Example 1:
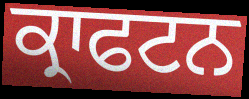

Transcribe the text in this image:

ਕ੍ਰਾਫਟਨ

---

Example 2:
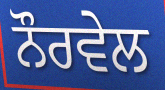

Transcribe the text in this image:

ਨੌਰਵੇਲ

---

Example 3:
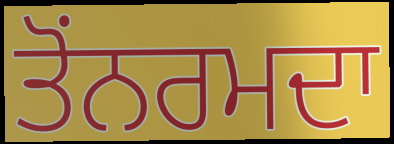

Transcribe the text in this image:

ਤੋਂਨਰਮਦਾ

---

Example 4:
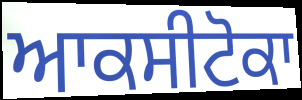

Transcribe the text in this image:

ਆਕਸੀਟੋਕਾ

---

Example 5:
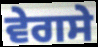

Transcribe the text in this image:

ਵੇਗਸੇ